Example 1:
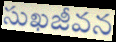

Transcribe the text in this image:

సుఖజీవన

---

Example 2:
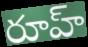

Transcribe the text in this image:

రూహ్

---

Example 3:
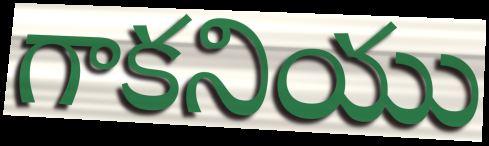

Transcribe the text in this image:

గాకనియు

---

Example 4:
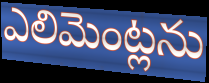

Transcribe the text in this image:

ఎలిమెంట్లను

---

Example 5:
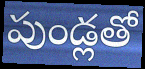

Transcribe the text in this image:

పుండ్లతో